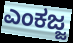
ಎಂಕಜ್ಜ